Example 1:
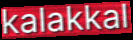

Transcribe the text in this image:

kalakkal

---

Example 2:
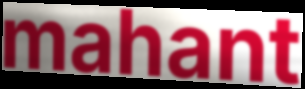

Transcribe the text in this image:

mahant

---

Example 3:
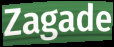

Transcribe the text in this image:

Zagade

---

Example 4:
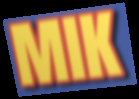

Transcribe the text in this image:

MIK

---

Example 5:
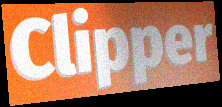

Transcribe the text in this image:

Clipper